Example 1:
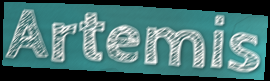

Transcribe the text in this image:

Artemis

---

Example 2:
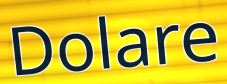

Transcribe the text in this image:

Dolare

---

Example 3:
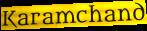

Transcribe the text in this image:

Karamchand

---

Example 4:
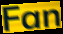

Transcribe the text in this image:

Fan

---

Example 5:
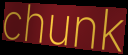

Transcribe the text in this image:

chunk